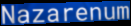
Nazarenum